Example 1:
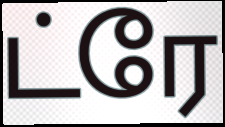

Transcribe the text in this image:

ட்ரே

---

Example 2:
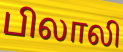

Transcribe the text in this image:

பிலாலி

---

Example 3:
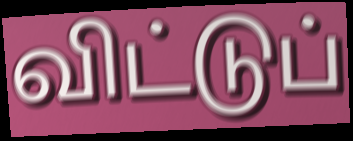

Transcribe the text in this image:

விட்டுப்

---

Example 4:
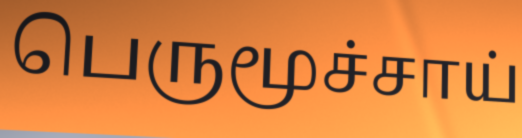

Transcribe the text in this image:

பெருமூச்சாய்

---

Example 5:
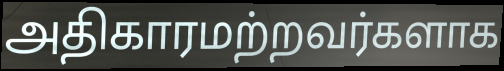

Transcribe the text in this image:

அதிகாரமற்றவர்களாக